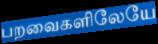
பறவைகளிலேயே